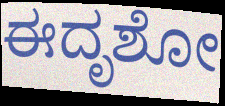
ಈದೃಶೋ